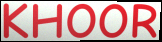
KHOOR